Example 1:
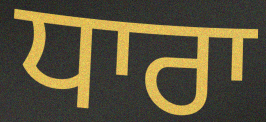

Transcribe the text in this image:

ਧਾਰਾ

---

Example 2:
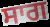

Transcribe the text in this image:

ਸਾਗ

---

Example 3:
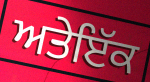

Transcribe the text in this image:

ਅਤੇਇੱਕ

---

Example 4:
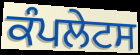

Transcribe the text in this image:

ਕੰਪਲੇਟਸ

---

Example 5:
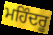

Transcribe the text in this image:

ਮਹਿੰਦਰੂ